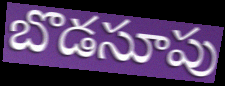
బొడసూపు